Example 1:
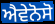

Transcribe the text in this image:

ਐਵੇਨੋਸੋ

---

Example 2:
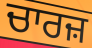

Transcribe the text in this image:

ਚਾਰਜ਼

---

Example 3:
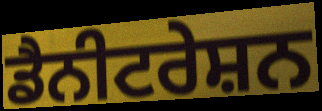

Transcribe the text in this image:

ਡੈਨੀਟਰੇਸ਼ਨ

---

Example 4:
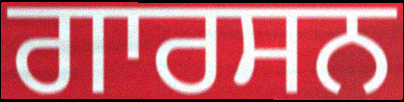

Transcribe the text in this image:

ਗਾਰਸਨ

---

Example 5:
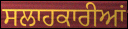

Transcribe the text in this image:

ਸਲਾਹਕਾਰੀਆਂ